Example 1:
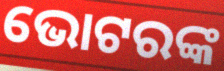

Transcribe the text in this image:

ଭୋଟରଙ୍କ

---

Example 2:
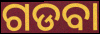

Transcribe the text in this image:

ଗଡବା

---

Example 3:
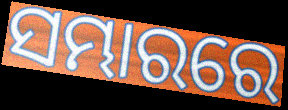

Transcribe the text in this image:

ସମ୍ଭାରରେ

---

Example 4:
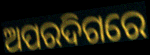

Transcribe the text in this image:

ଅପରଦିଗରେ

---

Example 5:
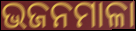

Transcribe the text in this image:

ଭଜନମାଳା